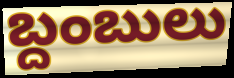
బ్దంబులు